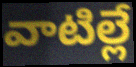
వాటిల్లే